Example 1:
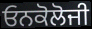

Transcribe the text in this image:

ਓਨਕੋਲੋਜੀ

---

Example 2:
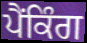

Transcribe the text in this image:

ਪੈਂਕਿੰਗ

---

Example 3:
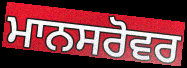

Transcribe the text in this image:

ਮਾਨਸਰੋਵਰ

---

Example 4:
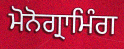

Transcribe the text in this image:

ਮੋਨੋਗ੍ਰਾਮਿੰਗ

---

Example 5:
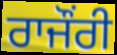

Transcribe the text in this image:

ਰਾਜੌਂਰੀ